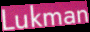
Lukman